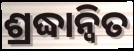
ଶ୍ରଦ୍ଧାନ୍ୱିତ